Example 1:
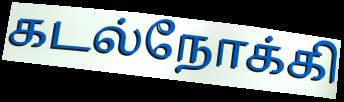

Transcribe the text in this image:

கடல்நோக்கி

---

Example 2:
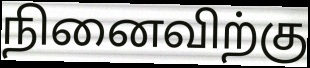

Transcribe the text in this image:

நினைவிற்கு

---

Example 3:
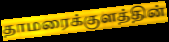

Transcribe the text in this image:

தாமரைக்குளத்தின்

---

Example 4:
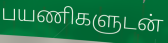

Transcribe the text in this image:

பயணிகளுடன்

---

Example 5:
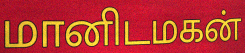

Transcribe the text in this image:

மானிடமகன்